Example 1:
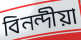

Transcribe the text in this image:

বিনন্দীয়া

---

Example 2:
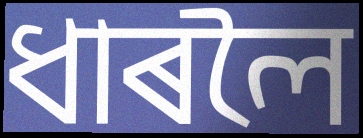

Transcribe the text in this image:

ধাৰলৈ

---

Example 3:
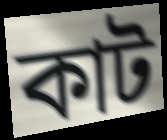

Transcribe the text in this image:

কাট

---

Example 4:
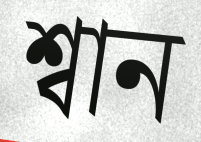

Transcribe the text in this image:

শ্বান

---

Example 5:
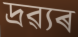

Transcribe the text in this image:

দ্ৰৱ্যৰ